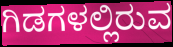
ಗಿಡಗಳಲ್ಲಿರುವ